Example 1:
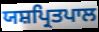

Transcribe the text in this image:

ਯਸ਼ਪ੍ਰਿਤਪਾਲ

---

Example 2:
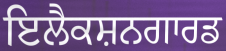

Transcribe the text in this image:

ਇਲੈਕਸ਼ਨਗਾਰਡ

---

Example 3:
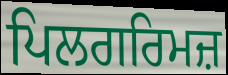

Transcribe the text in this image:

ਪਿਲਗਰਿਮਜ਼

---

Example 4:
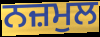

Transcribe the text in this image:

ਨਜ਼ਮੁਲ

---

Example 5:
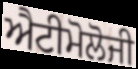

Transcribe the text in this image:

ਐਟੀਮੋਲੋਜੀ